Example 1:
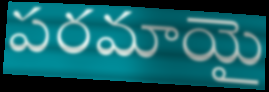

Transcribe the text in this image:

పరమాయై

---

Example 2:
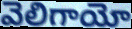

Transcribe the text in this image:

వెలిగాయో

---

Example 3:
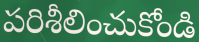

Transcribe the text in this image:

పరిశీలించుకోండి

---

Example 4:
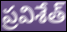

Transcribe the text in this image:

ప్రవిశేత్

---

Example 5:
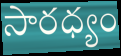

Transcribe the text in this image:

సారధ్యం